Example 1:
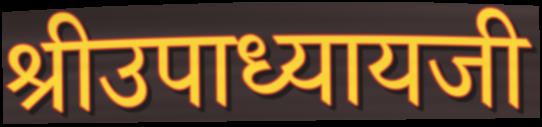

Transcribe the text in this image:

श्रीउपाध्यायजी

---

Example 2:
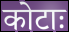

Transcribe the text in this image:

कोटाः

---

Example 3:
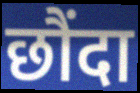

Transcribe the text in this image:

छौंदा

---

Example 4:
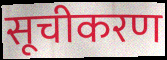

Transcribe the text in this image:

सूचीकरण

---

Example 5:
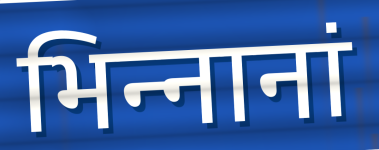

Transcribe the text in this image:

भिन्नानां